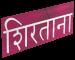
शिरताना